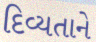
દિવ્યતાને